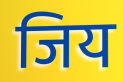
जिय